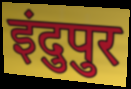
इंदुपुर